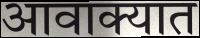
आवाक्‍यात